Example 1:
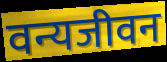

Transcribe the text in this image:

वन्यजीवन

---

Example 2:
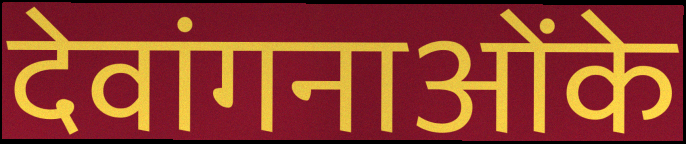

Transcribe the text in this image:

देवांगनाओंके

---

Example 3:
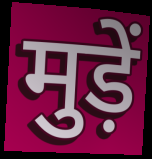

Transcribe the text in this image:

मुड़ें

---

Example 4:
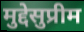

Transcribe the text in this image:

मुद्देसुप्रीम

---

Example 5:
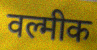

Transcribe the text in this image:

वल्मीक